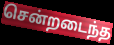
சென்றடைந்த